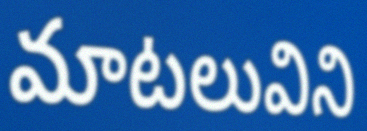
మాటలువిని